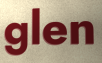
glen